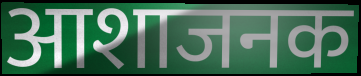
आशाजनक